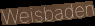
Weisbaden